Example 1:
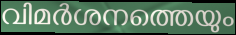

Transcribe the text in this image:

വിമർശനത്തെയും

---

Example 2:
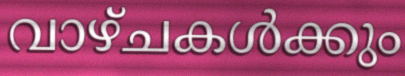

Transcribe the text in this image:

വാഴ്ചകൾക്കും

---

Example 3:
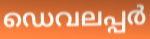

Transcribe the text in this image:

ഡെവലപ്പർ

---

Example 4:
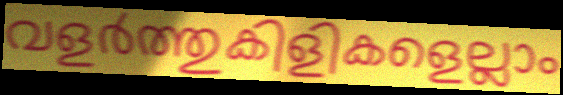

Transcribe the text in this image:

വളർത്തുകിളികളെല്ലാം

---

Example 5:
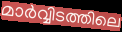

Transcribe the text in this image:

മാർവ്വിടത്തിലെ